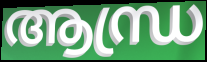
ആന്ധ്ര